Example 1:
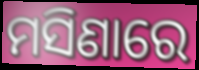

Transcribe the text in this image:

ମସିଣାରେ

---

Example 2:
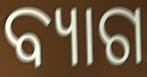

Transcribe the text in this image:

ବ୍ୟାଗ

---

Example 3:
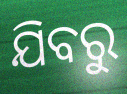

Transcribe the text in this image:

ଯିବରୁ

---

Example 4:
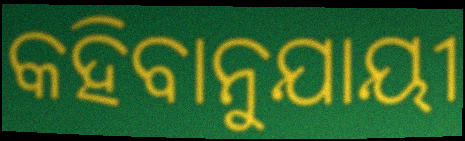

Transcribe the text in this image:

କହିବାନୁଯାୟୀ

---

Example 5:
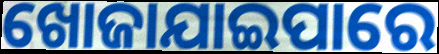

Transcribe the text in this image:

ଖୋଜାଯାଇପାରେ